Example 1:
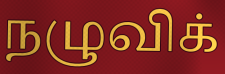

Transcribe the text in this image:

நழுவிக்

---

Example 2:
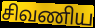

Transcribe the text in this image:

சிவணிய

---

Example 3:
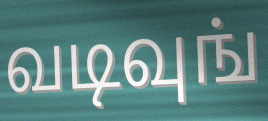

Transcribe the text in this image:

வடிவுங்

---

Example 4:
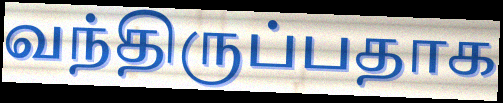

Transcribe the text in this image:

வந்திருப்பதாக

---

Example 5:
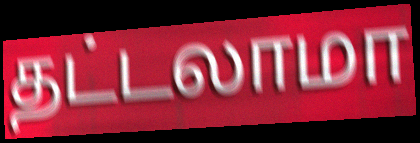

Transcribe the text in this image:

தட்டலாமா